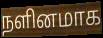
நளினமாக